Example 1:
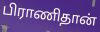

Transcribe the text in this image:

பிராணிதான்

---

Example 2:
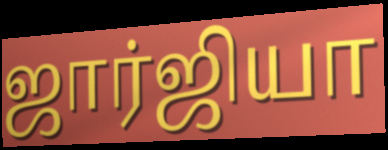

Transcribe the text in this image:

ஜார்ஜியா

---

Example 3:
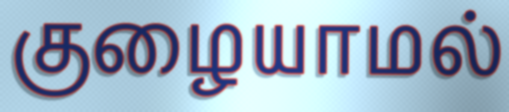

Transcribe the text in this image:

குழையாமல்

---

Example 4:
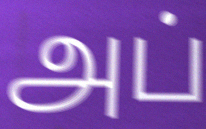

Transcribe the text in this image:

அப்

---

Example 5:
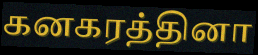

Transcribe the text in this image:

கனகரத்தினா